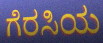
ಗೆರಸಿಯ